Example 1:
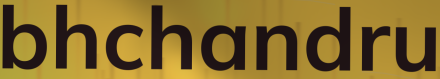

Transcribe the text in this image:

bhchandru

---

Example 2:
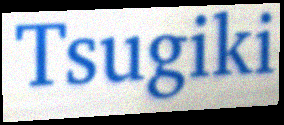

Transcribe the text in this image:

Tsugiki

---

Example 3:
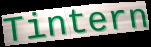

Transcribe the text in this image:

Tintern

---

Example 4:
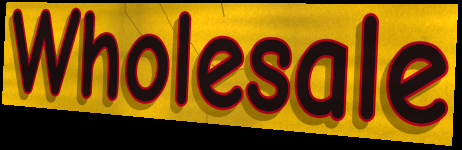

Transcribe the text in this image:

Wholesale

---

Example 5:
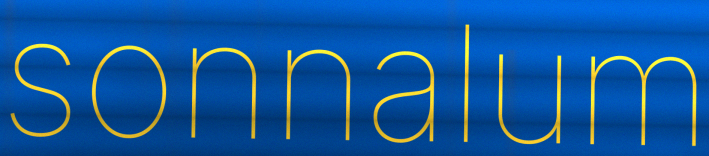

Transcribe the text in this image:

sonnalum